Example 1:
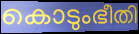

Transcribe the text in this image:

കൊടുംഭീതി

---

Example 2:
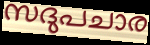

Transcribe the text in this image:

സദുപചാര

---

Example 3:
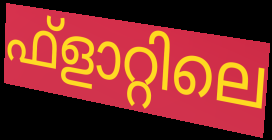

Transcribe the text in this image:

ഫ്ളാറ്റിലെ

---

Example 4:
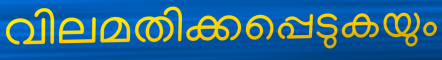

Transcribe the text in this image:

വിലമതിക്കപ്പെടുകയും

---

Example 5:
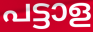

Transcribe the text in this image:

പട്ടാള